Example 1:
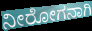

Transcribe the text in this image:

ನೀರೋಗನಾಗಿ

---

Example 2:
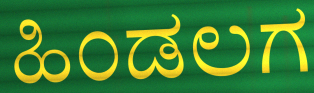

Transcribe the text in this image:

ಹಿಂಡಲಗ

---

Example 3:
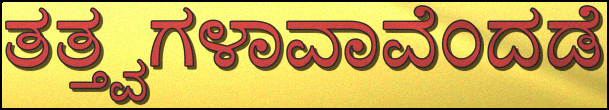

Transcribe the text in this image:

ತತ್ತ್ವಗಳಾವಾವೆಂದಡೆ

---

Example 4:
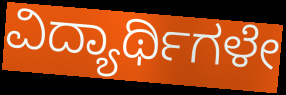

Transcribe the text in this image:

ವಿದ್ಯಾರ್ಥಿಗಳೇ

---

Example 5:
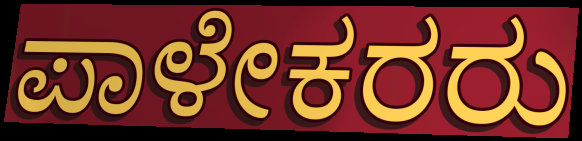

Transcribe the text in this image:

ಪಾಳೇಕರರು